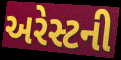
અરેસ્ટની